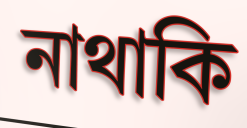
নাথাকি